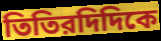
তিতিরদিদিকে